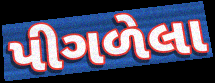
પીગળેલા